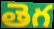
తెగ